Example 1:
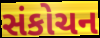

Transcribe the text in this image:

સંકોચન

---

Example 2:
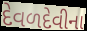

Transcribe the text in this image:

દેવળદેવીના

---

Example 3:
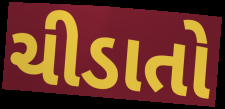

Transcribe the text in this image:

ચીડાતો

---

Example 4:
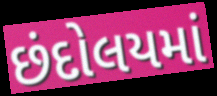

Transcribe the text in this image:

છંદોલયમાં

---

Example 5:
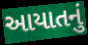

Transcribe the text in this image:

આયાતનું